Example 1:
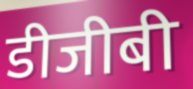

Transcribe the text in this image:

डीजीबी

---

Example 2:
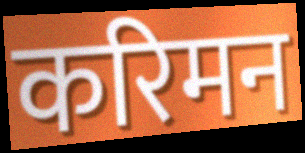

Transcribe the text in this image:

करिमन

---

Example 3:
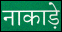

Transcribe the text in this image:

नाकाड़े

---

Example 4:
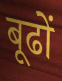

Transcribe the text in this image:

बूढों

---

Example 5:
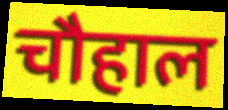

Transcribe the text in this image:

चौहाल